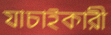
যাচাইকারী